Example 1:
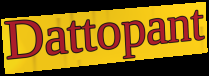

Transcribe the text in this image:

Dattopant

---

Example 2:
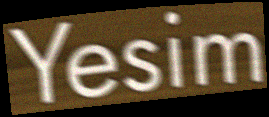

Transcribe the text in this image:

Yesim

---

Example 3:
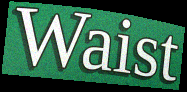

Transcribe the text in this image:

Waist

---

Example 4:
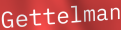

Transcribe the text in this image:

Gettelman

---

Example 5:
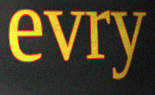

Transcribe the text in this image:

evry